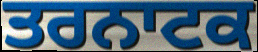
ਤਰਨਾਟਕ